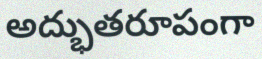
అద్భుతరూపంగా